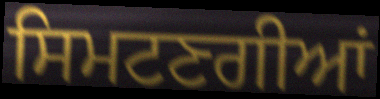
ਸਿਮਟਣਗੀਆਂ